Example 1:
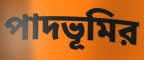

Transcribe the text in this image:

পাদভূমির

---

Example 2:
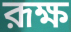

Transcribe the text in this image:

রূক্ষ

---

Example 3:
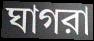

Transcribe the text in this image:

ঘাগরা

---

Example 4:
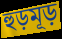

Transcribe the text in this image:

হুড়মূড়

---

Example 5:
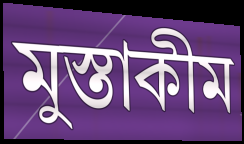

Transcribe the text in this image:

মুস্তাকীম